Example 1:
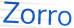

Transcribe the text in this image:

Zorro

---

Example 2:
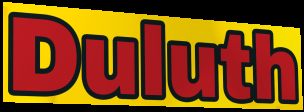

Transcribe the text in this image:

Duluth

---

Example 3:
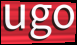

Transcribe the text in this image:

ugo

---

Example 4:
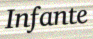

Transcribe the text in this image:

Infante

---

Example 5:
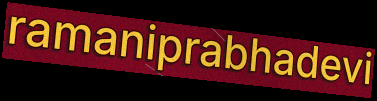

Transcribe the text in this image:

ramaniprabhadevi